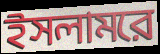
ইসলামরে